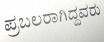
ಪ್ರಬಲರಾಗಿದ್ದವರು